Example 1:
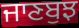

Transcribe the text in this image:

ਜਾਣਬੁਝ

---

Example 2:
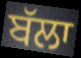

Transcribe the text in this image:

ਬੱਲਾ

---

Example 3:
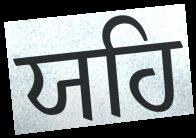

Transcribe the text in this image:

ਯਹਿ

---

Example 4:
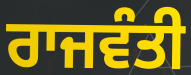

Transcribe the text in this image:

ਰਾਜਵੰਤੀ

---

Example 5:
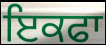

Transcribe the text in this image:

ਇਕਫਾ